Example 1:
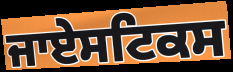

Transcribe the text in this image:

ਜਾਏਸਟਿਕਸ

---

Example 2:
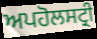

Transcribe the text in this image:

ਅਪਹੋਲਸਟ੍ਰੀ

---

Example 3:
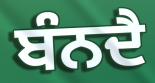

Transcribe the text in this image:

ਬੰਨਦੈ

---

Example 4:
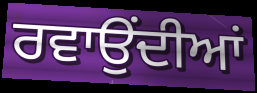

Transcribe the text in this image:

ਰਵਾਉਂਦੀਆਂ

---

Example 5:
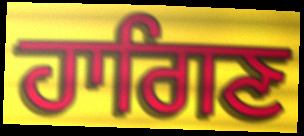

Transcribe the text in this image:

ਹਾਗਿਣ